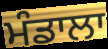
ਮੰਡਾਲਾ